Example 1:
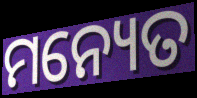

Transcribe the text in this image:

ମନ୍ୟେତ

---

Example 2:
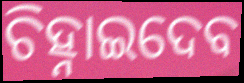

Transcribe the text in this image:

ଚିହ୍ନାଇଦେବ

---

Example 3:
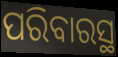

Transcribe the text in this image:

ପରିବାରସ୍ଥ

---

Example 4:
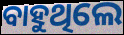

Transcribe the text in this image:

ବାହୁଥିଲେ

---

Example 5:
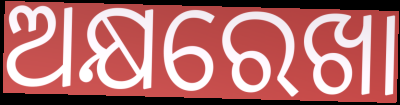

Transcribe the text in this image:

ଅକ୍ଷରେଖା